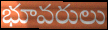
భూవరులు